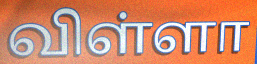
விள்ளா